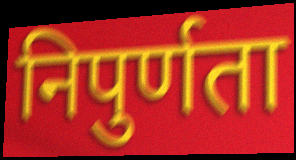
निपुर्णता